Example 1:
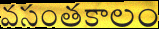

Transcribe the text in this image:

వసంతకాలం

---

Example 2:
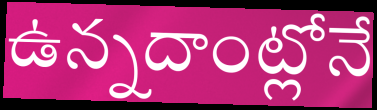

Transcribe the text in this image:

ఉన్నదాంట్లోనే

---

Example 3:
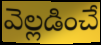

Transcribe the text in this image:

వెల్లడించే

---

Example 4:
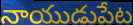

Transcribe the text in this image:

నాయుడుపేట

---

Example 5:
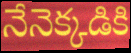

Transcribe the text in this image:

నేనెక్కడికి